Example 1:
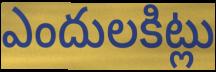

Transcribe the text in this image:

ఎందులకిట్లు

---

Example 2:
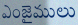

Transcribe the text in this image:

ఎంజైములు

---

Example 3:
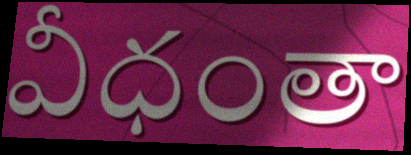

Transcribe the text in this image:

వీధంతా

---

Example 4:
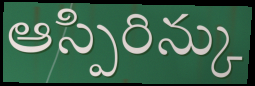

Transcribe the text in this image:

ఆస్పిరిన్కు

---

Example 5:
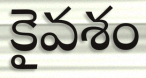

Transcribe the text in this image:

కైవశం